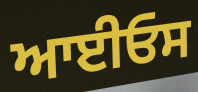
ਆਈਓਸ